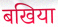
बखिया